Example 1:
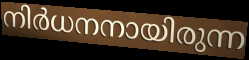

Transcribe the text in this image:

നിർധനനായിരുന്ന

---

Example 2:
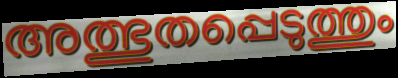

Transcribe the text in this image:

അത്ഭുതപ്പെടുത്തും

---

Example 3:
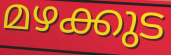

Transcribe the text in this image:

മഴക്കുട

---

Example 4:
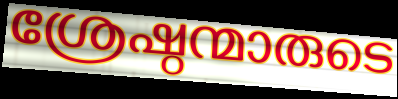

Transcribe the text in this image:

ശ്രേഷ്ഠന്മാരുടെ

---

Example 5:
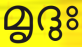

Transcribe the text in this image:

മൃദുഃ